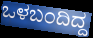
ಒಳಬಂದಿದ್ದ